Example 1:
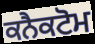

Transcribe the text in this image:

ਕਨੈਕਟੋਮ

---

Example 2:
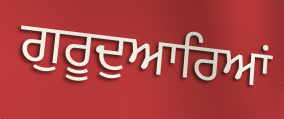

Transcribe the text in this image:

ਗੁਰੂਦੁਆਰਿਆਂ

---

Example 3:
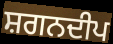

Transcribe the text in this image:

ਸ਼ਗਨਦੀਪ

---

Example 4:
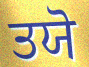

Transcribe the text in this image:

ਤਯੋ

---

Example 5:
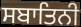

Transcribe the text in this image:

ਸਬਾਤਿਨੀ